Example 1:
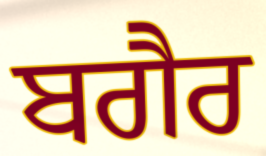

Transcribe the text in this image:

ਬਗੈਰ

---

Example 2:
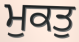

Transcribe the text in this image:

ਮੁਕਤੁ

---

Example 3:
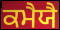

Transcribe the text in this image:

ਕਮੈਯੈ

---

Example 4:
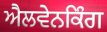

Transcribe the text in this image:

ਐਲਵੇਨਕਿੰਗ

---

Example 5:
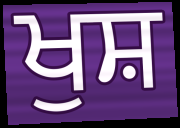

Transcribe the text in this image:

ਖੁਸ਼